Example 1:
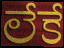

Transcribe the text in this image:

లేకే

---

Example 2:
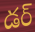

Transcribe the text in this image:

డర్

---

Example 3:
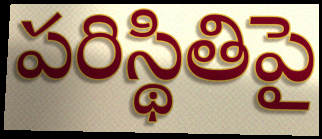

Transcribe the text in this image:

పరిస్థితిపై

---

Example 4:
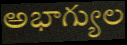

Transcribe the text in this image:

అభాగ్యుల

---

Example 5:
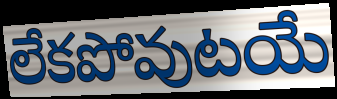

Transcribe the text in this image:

లేకపోవుటయే